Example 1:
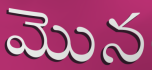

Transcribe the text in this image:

మొన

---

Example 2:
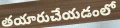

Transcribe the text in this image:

తయారుచేయడంలో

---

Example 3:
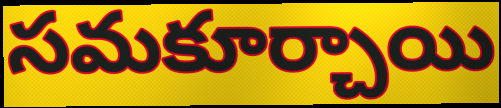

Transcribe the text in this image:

సమకూర్చాయి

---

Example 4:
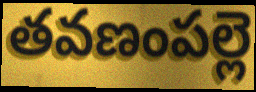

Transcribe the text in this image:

తవణంపల్లె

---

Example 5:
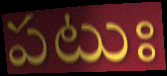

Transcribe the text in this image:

పటుః